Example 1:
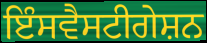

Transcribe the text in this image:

ਇੰਸਵੈਸਟੀਗੇਸ਼ਨ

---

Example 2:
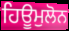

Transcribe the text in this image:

ਹਿਊਮੁਲੋਨ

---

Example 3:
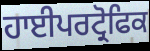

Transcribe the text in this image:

ਹਾਈਪਰਟ੍ਰੋਫਿਕ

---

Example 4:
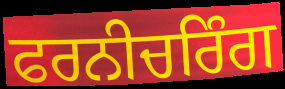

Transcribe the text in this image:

ਫਰਨੀਚਰਿੰਗ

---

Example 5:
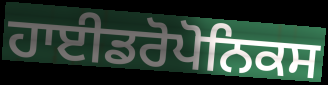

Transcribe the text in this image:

ਹਾਈਡਰੋਪੋਨਿਕਸ